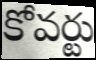
కోవర్టు